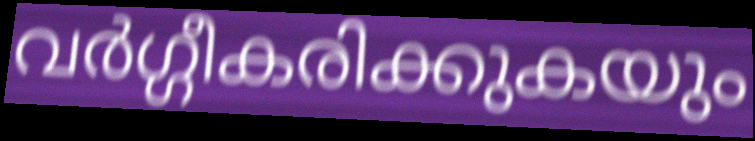
വർഗ്ഗീകരിക്കുകയും